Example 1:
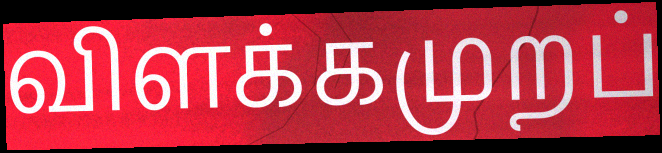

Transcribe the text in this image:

விளக்கமுறப்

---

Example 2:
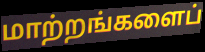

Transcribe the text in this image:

மாற்றங்களைப்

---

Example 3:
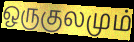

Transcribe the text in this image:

ஒருகுலமும்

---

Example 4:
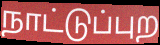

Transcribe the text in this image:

நாட்டுப்புற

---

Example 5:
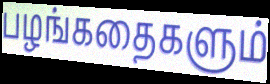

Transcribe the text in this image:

பழங்கதைகளும்